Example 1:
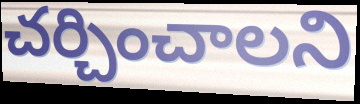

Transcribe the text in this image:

చర్చించాలని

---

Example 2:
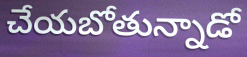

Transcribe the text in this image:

చేయబోతున్నాడో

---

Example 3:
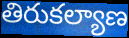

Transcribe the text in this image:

తిరుకల్యాణ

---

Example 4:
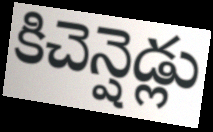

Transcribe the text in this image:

కిచెన్షెడ్లు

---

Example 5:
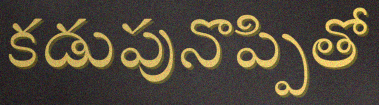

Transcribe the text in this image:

కడుపునొప్పితో